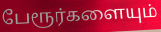
பேரூர்களையும்